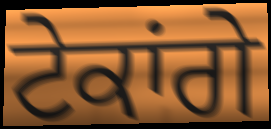
ਟੇਕਾਂਗੇ